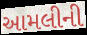
આમલીની